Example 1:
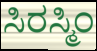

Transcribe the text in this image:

ಸಿರಸ್ಮಿಂ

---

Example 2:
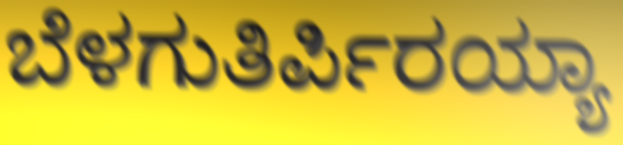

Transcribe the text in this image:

ಬೆಳಗುತಿರ್ಪಿರಯ್ಯಾ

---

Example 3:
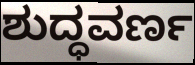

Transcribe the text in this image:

ಶುದ್ಧವರ್ಣ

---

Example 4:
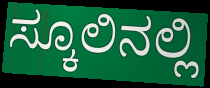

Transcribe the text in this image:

ಸ್ಕೂಲಿನಲ್ಲಿ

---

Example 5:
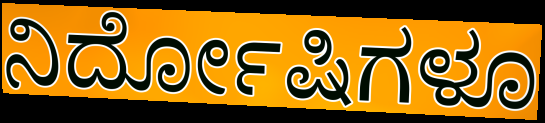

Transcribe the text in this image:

ನಿರ್ದೋಷಿಗಳೂ